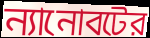
ন্যানোবটের